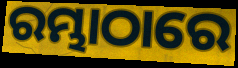
ରମ୍ଭାଠାରେ